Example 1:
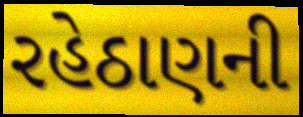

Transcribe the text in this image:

રહેઠાણની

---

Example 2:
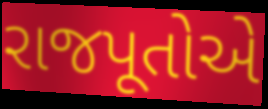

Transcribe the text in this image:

રાજપૂતોએ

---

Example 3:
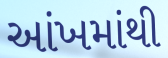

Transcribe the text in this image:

આંખમાંથી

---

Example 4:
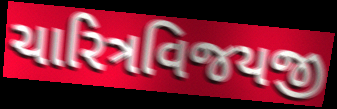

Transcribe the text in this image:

ચારિત્રવિજયજી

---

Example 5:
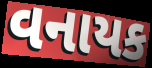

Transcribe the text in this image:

વનાયક